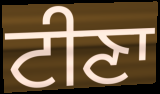
ਟੀਣਾ